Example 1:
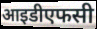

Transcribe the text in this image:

आइडीएफसी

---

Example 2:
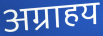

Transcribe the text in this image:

अग्राहय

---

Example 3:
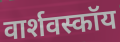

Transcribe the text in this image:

वार्शवस्कॉय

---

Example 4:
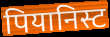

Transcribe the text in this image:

पियानिस्ट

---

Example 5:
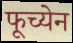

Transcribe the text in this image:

फूच्येन